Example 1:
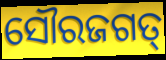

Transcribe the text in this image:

ସୌରଜଗତ୍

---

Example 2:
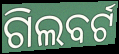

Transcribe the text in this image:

ଗିଲବର୍ଟ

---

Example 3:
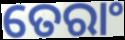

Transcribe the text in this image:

ତେରାଂ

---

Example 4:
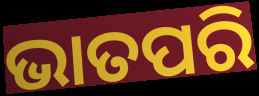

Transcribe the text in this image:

ଭାତପରି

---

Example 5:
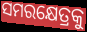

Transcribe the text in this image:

ସମରକ୍ଷେତ୍ରକୁ